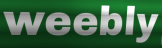
weebly